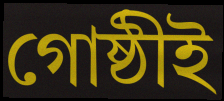
গোষ্ঠীই